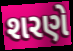
શરણે